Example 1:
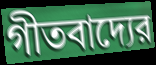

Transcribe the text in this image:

গীতবাদ্যের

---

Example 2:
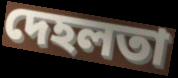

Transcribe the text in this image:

দেহলতা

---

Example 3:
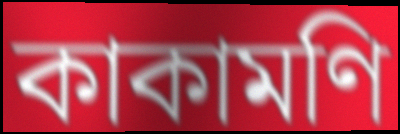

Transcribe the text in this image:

কাকামণি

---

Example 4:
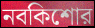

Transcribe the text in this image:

নবকিশোর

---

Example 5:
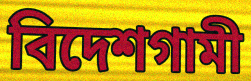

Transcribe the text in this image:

বিদেশগামী